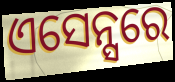
ଏସେନ୍ସରେ